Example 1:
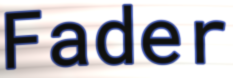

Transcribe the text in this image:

Fader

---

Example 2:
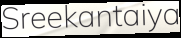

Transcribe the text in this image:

Sreekantaiya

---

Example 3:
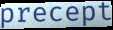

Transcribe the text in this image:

precept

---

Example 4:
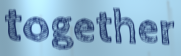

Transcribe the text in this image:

together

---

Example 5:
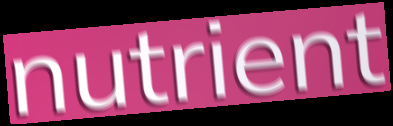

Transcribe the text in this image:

nutrient